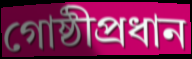
গোষ্ঠীপ্রধান